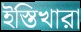
ইস্তিখারা